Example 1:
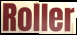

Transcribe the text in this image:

Roller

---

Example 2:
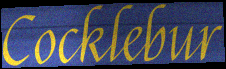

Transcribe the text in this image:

Cocklebur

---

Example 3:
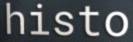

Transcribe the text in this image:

histo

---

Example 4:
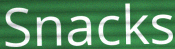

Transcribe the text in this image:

Snacks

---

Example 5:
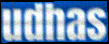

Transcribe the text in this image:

udhas